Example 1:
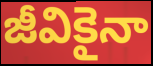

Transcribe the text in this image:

జీవికైనా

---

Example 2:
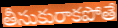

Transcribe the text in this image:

తీసుకురాకపోతే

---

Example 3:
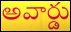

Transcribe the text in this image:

అవార్డు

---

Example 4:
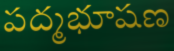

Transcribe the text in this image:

పద్మభూషణ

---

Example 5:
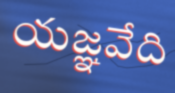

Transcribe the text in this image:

యజ్ఞవేది